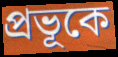
প্রভূকে